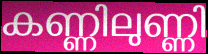
കണ്ണിലുണ്ണി